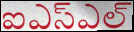
ఐఎస్ఎల్